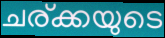
ചര്ക്കയുടെ